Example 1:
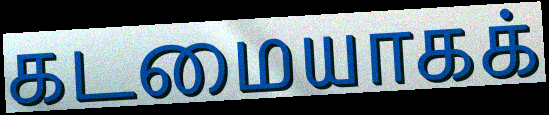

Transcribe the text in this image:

கடமையாகக்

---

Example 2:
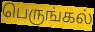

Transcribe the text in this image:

பெருங்கல்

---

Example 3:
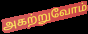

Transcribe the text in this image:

அகற்றுவோம்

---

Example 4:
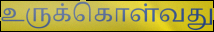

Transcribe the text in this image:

உருக்கொள்வது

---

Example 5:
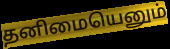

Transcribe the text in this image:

தனிமையெனும்